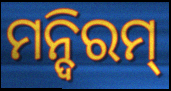
ମନ୍ଦିରମ୍